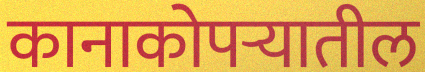
कानाकोपऱ्यातील